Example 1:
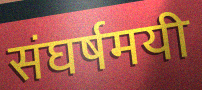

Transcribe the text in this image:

संघर्षमयी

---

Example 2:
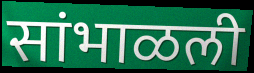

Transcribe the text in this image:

सांभाळली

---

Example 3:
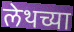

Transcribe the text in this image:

लेथच्या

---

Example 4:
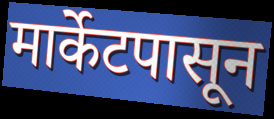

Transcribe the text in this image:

मार्केटपासून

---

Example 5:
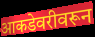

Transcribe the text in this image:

आकडेवरीवरून